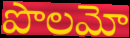
పొలమో